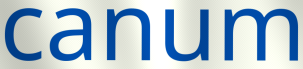
canum